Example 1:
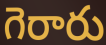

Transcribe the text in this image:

గెరారు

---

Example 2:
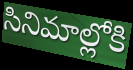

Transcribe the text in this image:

సినిమాల్లోకి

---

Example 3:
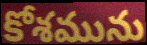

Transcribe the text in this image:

కోశమును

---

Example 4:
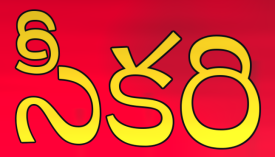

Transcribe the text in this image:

సీకరి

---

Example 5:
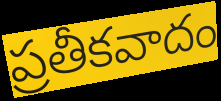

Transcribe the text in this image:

ప్రతీకవాదం